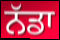
ਨੱਡਾ